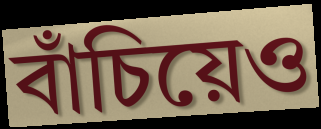
বাঁচিয়েও